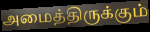
அமைத்திருக்கும்